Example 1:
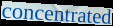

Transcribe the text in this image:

concentrated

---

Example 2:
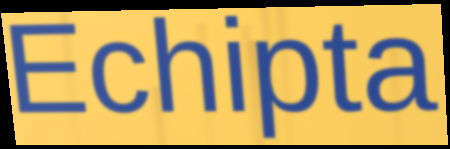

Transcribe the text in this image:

Echipta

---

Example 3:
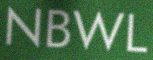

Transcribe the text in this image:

NBWL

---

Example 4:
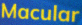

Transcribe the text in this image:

Macular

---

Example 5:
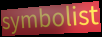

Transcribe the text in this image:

symbolist